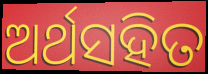
ଅର୍ଥସହିତ